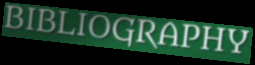
BIBLIOGRAPHY